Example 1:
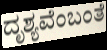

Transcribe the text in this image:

ದೃಶ್ಯವೆಂಬಂತೆ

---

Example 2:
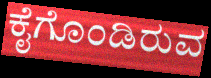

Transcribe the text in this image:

ಕೈಗೊಂಡಿರುವ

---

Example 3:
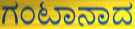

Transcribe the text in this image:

ಗಂಟಾನಾದ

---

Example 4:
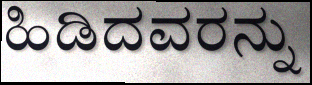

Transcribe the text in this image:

ಹಿಡಿದವರನ್ನು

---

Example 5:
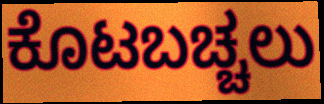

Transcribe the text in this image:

ಕೊಟಬಚ್ಚಲು